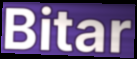
Bitar